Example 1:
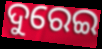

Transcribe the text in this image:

ଦୁରେଇ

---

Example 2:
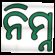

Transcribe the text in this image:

ନିମ୍ନ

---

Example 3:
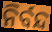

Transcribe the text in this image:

ନିର୍ବନ୍ଦ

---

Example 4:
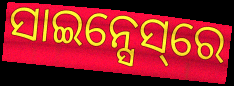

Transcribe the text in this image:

ସାଇନ୍ସେସ୍‌ରେ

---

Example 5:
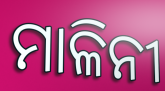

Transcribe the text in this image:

ମାଳିନୀ